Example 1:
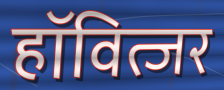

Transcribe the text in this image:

हॉवित्जर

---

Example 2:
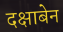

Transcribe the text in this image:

दक्षाबेन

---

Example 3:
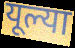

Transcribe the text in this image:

यूल्या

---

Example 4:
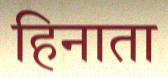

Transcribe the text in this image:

हिनाता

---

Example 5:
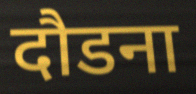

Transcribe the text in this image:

दौडना